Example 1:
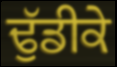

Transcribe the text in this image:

ਢੁੱਡੀਕੇ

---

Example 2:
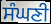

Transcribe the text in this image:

ਸੰਘਣੀ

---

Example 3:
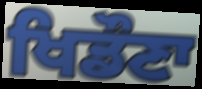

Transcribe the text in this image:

ਖਿਡੌਣਾ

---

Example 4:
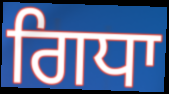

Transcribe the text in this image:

ਗਿਧਾ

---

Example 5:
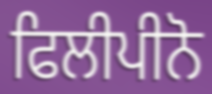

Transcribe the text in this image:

ਫਿਲੀਪੀਨੋ